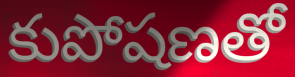
కుపోషణతో